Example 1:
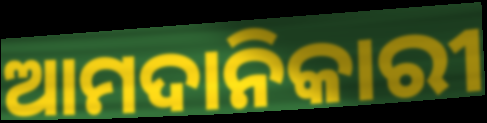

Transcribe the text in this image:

ଆମଦାନିକାରୀ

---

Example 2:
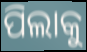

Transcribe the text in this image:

ପିଲାକୁ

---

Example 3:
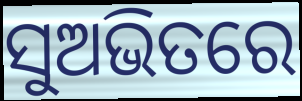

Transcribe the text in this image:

ସୁଅଭିତରେ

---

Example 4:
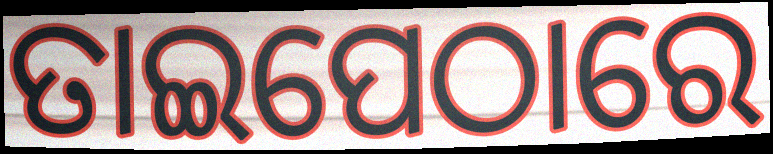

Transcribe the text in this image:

ତାଇପେଠାରେ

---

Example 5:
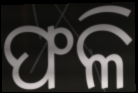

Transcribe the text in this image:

ଫଳି